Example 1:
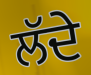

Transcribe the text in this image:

ਲੱਦੇ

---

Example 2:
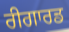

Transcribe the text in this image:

ਰੀਗਾਰਡ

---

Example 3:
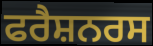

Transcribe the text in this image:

ਫਰੈਸ਼ਨਰਸ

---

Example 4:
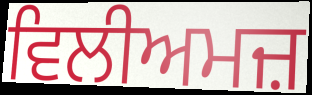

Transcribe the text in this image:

ਵਿਲੀਅਮਜ਼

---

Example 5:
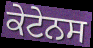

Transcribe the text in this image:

ਕੇਟੇਨਸ